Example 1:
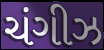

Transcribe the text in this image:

ચંગીઝ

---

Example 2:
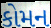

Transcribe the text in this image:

કોમન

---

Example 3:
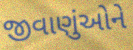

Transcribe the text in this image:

જીવાણુંઓને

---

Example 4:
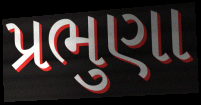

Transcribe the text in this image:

પ્રભુણા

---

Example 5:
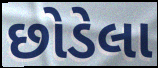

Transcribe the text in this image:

છોડેલા